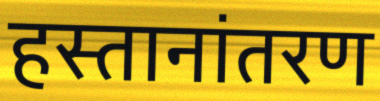
हस्तानांतरण